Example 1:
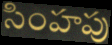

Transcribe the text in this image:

సింహపు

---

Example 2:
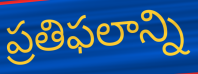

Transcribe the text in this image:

ప్రతిఫలాన్ని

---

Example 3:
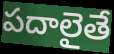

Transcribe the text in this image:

పదాలైతే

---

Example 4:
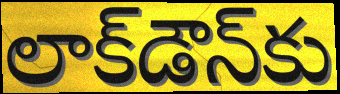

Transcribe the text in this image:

లాక్‌డౌన్‌కు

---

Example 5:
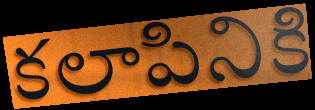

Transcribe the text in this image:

కలాపినికి